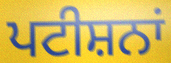
ਪਟੀਸ਼ਨਾਂ